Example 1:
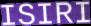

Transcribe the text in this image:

ISIRI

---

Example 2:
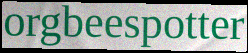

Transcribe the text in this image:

orgbeespotter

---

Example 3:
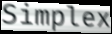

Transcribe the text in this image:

Simplex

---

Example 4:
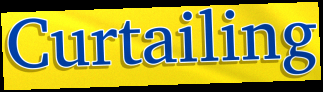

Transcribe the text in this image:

Curtailing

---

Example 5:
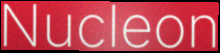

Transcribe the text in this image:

Nucleon